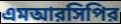
এমআরসিপির